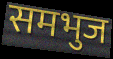
समभुज